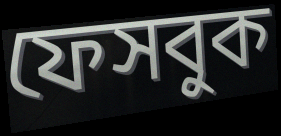
ফেসবুক